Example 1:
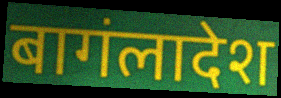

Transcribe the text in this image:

बागंलादेश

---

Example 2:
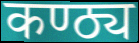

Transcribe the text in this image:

कण्ठ्य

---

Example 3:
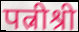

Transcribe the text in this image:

पत्नीश्री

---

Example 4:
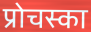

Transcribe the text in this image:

प्रोचस्का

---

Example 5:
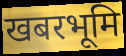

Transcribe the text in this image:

खबरभूमि